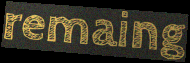
remaing